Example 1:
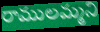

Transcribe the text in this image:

రాములమ్మని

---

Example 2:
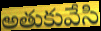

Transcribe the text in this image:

అతుకువేసి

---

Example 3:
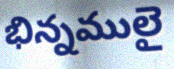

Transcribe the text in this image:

భిన్నములై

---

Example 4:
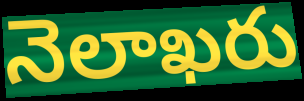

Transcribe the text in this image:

నెలాఖరు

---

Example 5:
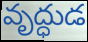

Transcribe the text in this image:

వృద్ధుడ